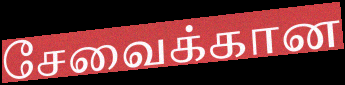
சேவைக்கான